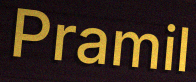
Pramil